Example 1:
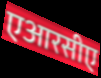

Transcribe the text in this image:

एआरसीए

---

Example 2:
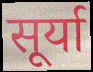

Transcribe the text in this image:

सूर्या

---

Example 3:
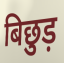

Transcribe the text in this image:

बिछुड़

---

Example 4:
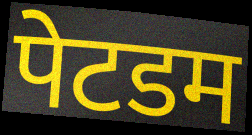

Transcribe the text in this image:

पेटडम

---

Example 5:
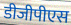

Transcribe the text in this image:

डीजीपीएस